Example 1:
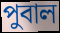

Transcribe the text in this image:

পুবাল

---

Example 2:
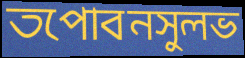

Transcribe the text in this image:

তপোবনসুলভ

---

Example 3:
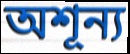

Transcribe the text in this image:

অশূন্য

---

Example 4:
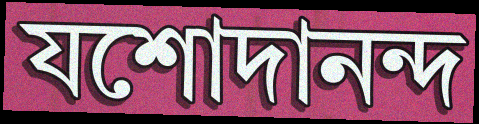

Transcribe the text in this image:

যশোদানন্দ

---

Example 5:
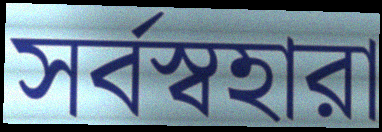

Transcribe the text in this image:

সর্বস্বহারা